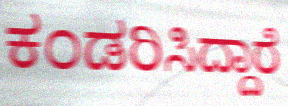
ಕಂಡರಿಸಿದ್ದಾರೆ